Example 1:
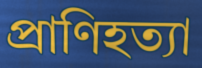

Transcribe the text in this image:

প্রাণিহত্যা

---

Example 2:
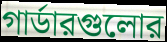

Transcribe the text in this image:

গার্ডারগুলোর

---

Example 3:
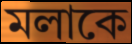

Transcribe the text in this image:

মলাকে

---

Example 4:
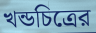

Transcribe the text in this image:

খন্ডচিত্রের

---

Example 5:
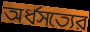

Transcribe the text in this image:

অর্ধসত্যের